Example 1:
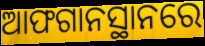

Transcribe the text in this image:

ଆଫଗାନସ୍ଥାନରେ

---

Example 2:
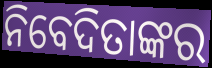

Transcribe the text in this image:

ନିବେଦିତାଙ୍କର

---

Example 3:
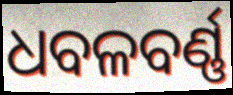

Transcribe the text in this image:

ଧବଳବର୍ଣ୍ଣ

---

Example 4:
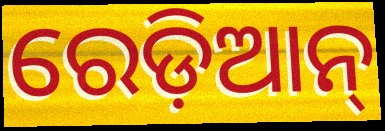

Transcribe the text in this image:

ରେଡ଼ିଆନ୍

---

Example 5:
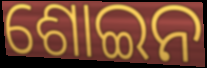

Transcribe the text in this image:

ଶୋଇନ